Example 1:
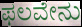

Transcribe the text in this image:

ಫಲವೇನು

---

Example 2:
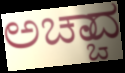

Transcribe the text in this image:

ಅಚ್ಚಾದ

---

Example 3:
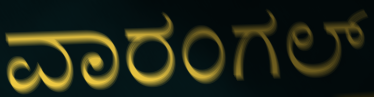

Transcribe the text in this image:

ವಾರಂಗಲ್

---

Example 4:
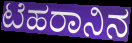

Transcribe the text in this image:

ಟೆಹರಾನಿನ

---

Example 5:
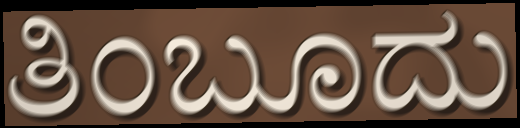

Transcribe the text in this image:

ತಿಂಬೂದು